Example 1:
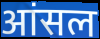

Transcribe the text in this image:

आंसल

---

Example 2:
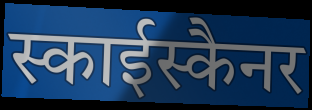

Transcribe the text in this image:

स्काईस्कैनर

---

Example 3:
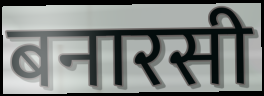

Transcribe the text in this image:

बनारसी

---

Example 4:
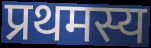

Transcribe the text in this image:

प्रथमस्य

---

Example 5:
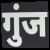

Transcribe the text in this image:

गुंज